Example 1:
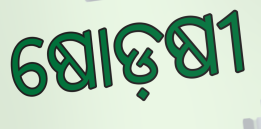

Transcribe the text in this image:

ଷୋଡ଼ଷୀ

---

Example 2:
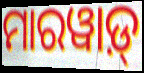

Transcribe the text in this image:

ମାରୱାଡ଼୍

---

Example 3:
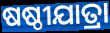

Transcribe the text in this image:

ଷଷ୍ଠୀଯାତ୍ରା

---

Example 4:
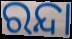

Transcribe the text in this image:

ରନ୍ଦା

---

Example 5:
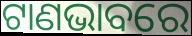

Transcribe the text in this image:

ଟାଣଭାବରେ